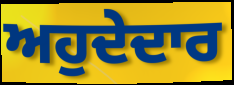
ਅਹੁਦੇਦਾਰ